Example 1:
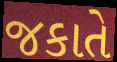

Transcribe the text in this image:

જકાતે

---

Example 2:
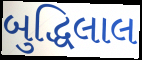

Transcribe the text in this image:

બુદ્ધિલાલ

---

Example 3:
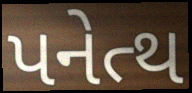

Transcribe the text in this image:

પનેત્થ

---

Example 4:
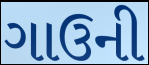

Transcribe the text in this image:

ગાઉની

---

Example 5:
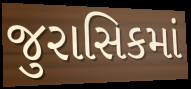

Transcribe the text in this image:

જુરાસિકમાં